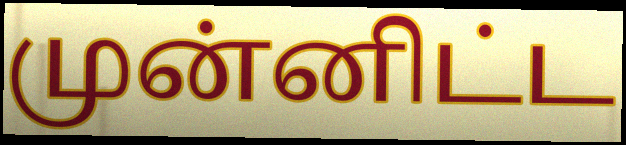
முன்னிட்ட